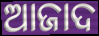
ଆଜାଦ